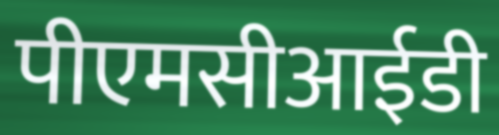
पीएमसीआईडी